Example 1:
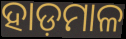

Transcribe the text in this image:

ହାଡ଼ମାଳ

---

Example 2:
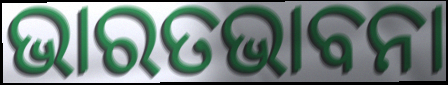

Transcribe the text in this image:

ଭାରତଭାବନା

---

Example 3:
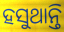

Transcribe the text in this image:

ହସୁଥାନ୍ତି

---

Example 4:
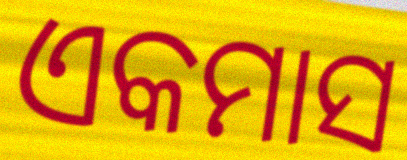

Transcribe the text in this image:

ଏକମାସ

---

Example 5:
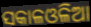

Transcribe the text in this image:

ସକାଳଓଳିଆ